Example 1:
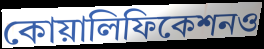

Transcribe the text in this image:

কোয়ালিফিকেশনও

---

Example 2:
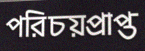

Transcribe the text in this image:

পরিচয়প্রাপ্ত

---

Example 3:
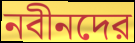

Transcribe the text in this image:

নবীনদের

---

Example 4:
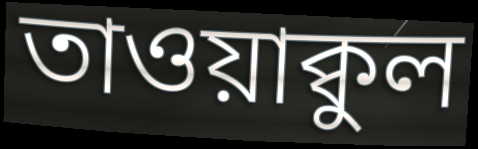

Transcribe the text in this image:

তাওয়াক্বুল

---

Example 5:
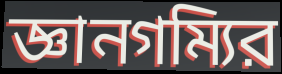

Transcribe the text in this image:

জ্ঞানগম্যির